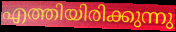
എത്തിയിരിക്കുന്നു